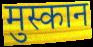
मुस्कान